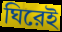
ঘিরেই